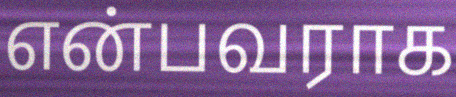
என்பவராக